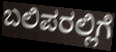
ಬಲಿಪರಲ್ಲಿಗೆ